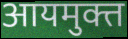
आयमुक्त